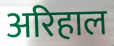
अरिहाल